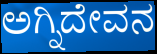
ಅಗ್ನಿದೇವನ